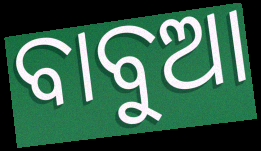
ବାବୁଆ